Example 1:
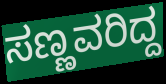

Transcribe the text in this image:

ಸಣ್ಣವರಿದ್ದ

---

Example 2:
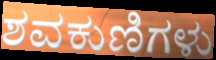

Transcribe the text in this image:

ಶವಕುಣಿಗಳು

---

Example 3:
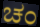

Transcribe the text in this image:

ಚಂ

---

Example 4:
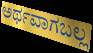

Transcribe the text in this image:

ಅರ್ಥವಾಗಬಲ್ಲ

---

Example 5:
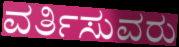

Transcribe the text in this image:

ವರ್ತಿಸುವರು